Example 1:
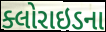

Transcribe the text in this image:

ક્લોરાઇડના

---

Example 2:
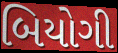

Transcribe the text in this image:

બિયોગી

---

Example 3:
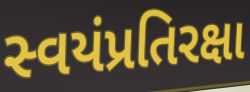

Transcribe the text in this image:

સ્વયંપ્રતિરક્ષા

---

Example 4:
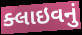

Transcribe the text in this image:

ક્લાઇવનું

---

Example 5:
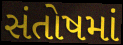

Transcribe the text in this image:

સંતોષમાં